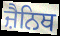
ਜ਼ੈਨਿਥ